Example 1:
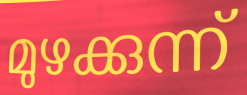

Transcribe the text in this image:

മുഴക്കുന്ന്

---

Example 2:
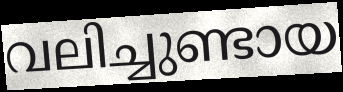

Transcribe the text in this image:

വലിച്ചുണ്ടായ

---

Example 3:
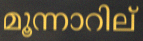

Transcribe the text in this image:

മൂന്നാറില്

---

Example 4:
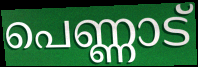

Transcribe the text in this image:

പെണ്ണാട്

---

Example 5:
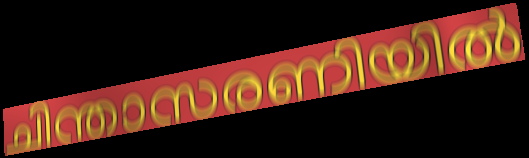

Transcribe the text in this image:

ചിന്താസരണിയിൽ